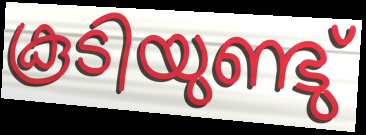
കൂടിയുണ്ടു്